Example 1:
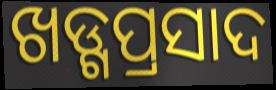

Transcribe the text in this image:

ଖଡ୍ଗପ୍ରସାଦ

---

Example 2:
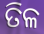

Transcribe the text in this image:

ତିଳ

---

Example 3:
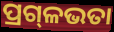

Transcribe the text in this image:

ପ୍ରଗ୍‍ଳଭତା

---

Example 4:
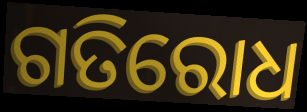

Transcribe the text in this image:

ଗତିରୋଧ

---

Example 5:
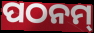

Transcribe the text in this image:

ପଠନମ୍